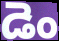
డెం